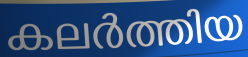
കലർത്തിയ